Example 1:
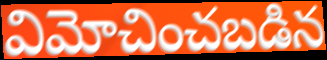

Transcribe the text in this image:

విమోచించబడిన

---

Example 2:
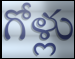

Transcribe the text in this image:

గోళ్లు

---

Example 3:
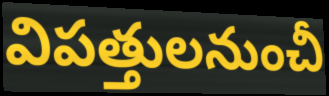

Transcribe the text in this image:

విపత్తులనుంచీ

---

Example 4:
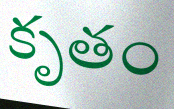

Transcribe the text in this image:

కృతం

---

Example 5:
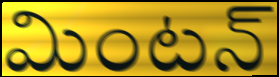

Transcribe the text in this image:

మింటన్